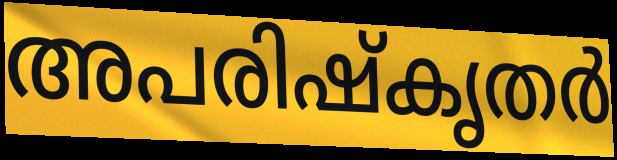
അപരിഷ്കൃതർ